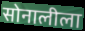
सोनालीला